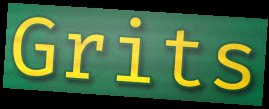
Grits